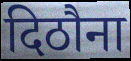
दिठौना